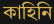
কাহিনি